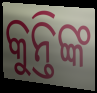
କୁନ୍ତିଙ୍କ